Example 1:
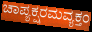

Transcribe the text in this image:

ಚಾಪ್ಯಕ್ಷರಮವ್ಯಕ್ತಂ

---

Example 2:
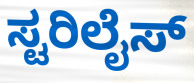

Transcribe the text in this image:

ಸ್ಟರಿಲೈಸ್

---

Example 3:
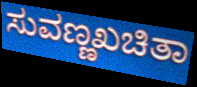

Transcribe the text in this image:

ಸುವಣ್ಣಖಚಿತಾ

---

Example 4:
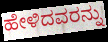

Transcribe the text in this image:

ಹೇಳಿದವರನ್ನು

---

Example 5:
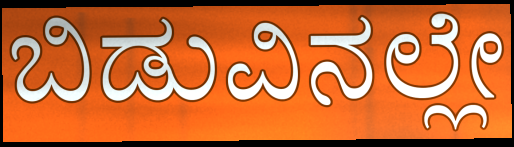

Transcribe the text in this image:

ಬಿಡುವಿನಲ್ಲೇ